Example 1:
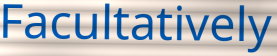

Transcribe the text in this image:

Facultatively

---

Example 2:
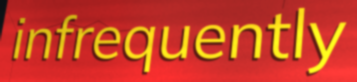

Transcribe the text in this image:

infrequently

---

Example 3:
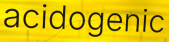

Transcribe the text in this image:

acidogenic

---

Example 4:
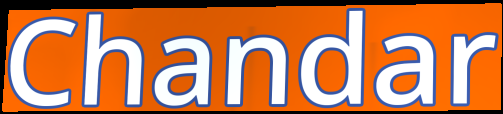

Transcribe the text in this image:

Chandar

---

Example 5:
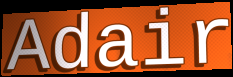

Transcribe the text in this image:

Adair